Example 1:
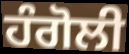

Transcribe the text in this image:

ਹੰਗੋਲੀ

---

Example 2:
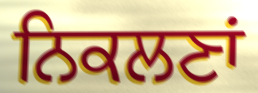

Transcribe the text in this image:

ਨਿਕਲਣਾਂ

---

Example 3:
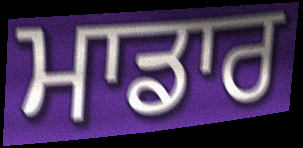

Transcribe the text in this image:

ਮਾਡਾਰ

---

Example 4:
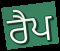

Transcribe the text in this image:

ਰੈਪ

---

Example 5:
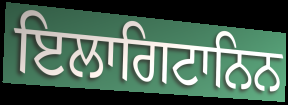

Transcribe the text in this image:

ਇਲਾਗਿਟਾਨਿਨ